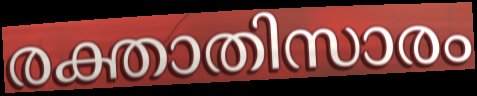
രക്താതിസാരം